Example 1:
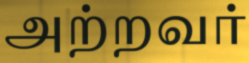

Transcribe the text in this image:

அற்றவர்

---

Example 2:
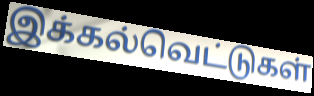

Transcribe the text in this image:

இக்கல்வெட்டுகள்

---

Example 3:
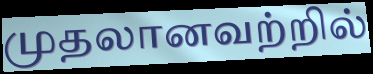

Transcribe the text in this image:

முதலானவற்றில்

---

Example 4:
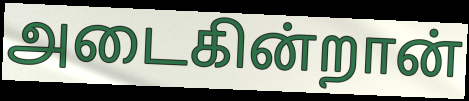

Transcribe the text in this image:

அடைகின்றான்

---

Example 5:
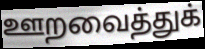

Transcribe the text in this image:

ஊறவைத்துக்